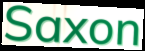
Saxon